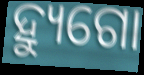
ହ୍ୟୁଗୋ